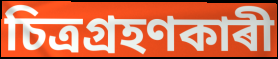
চিত্ৰগ্ৰহণকাৰী